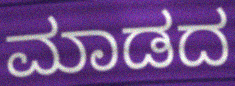
ಮಾಡದ